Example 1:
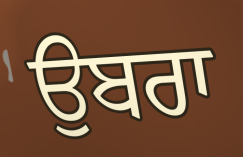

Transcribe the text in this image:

ਉਬਰਾ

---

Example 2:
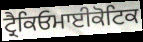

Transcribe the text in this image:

ਟ੍ਰੈਕਿਓਮਾਈਕੋਟਿਕ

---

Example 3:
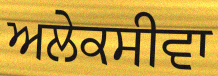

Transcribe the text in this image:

ਅਲੇਕਸੀਵਾ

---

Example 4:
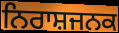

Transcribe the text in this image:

ਨਿਰਾਸ਼ਜਨਕ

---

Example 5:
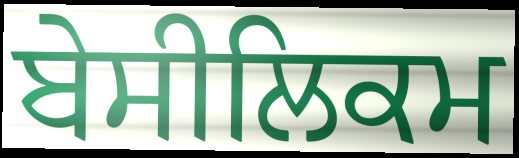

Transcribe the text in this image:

ਬੇਸੀਲਿਕਮ